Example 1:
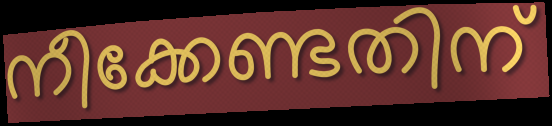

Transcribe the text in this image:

നീക്കേണ്ടതിന്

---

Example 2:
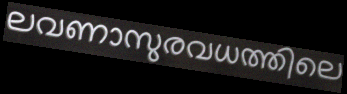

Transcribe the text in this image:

ലവണാസുരവധത്തിലെ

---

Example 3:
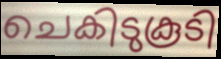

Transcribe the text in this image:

ചെകിടുകൂടി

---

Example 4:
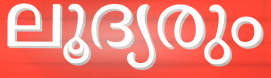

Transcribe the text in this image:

ലൂദ്യരും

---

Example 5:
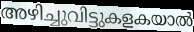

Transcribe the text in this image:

അഴിച്ചുവിട്ടുകളകയാൽ